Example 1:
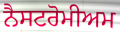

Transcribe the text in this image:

ਨੈਸਟਰੋਮੀਅਮ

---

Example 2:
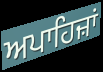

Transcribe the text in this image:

ਅਪਾਹਿਜ਼ਾਂ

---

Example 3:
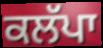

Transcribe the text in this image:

ਕਲੱਪਾ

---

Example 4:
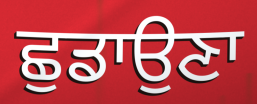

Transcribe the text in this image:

ਛੁਡਾਉਣਾ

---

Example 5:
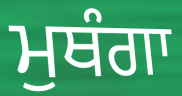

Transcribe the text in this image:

ਮੁਥੰਗਾ